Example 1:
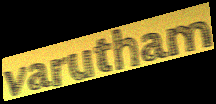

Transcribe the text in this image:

varutham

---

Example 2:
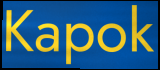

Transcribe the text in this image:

Kapok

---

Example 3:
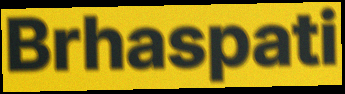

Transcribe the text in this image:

Brhaspati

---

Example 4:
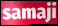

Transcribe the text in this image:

samaji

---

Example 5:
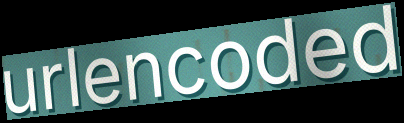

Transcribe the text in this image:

urlencoded